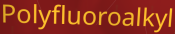
Polyfluoroalkyl